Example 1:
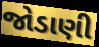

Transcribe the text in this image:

જોડાણી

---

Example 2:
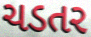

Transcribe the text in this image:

ચડતર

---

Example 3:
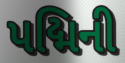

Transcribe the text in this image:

પદ્મિની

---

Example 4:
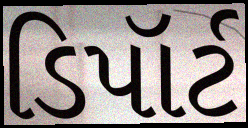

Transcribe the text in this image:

ડિપૉર્ટ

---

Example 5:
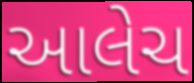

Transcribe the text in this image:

આલેચ